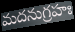
మదనుగ్రహః